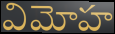
విమోహ